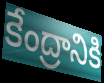
కేంద్రానికి